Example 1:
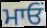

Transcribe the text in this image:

ਮਾਓਂ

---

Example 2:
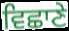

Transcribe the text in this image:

ਵਿਛਾਣੇ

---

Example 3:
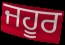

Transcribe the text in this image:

ਜਹੂਰ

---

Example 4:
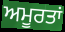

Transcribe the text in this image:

ਅਮੂਰਤਾਂ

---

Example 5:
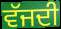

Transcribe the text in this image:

ਵੱਜਦੀ